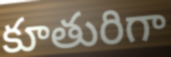
కూతురిగా